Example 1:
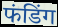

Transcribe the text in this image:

फंडिंग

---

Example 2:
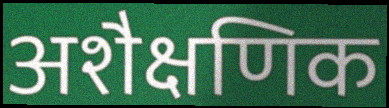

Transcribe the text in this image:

अशैक्षणिक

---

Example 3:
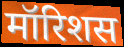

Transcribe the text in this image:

मॉरिशस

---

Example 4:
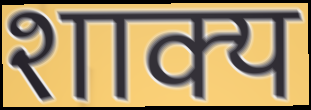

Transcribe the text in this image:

शाक्य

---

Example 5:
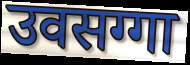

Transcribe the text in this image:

उवसग्गा